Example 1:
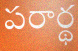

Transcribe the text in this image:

పరార్థ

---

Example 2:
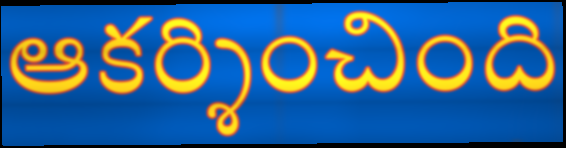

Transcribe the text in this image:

ఆకర్శించింది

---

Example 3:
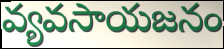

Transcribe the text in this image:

వ్యవసాయజనం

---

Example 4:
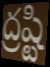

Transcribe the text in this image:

ద్రష్టి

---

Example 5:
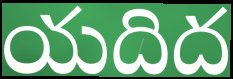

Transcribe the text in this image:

యదిద